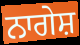
ਨਾਗੇਸ਼